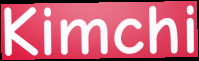
Kimchi